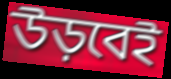
উড়বেই